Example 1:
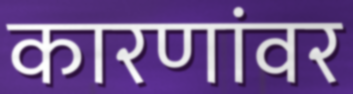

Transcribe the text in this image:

कारणांवर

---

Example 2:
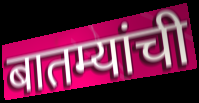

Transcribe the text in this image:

बातम्यांची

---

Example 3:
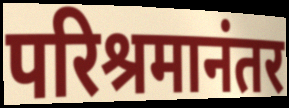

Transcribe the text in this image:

परिश्रमानंतर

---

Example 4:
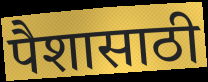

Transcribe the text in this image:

पैशासाठी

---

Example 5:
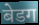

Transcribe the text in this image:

बेडग